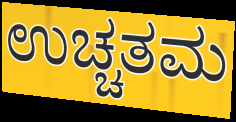
ಉಚ್ಚತಮ